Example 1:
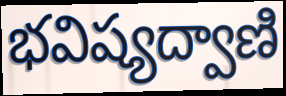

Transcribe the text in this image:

భవిష్యద్వాణి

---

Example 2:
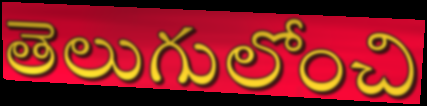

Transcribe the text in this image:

తెలుగులోంచి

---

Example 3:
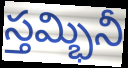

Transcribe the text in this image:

స్తమ్భినీ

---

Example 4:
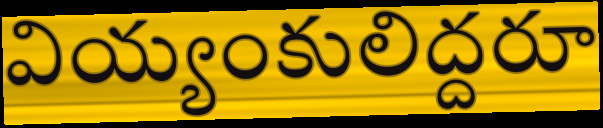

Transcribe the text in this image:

వియ్యంకులిద్దరూ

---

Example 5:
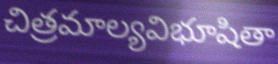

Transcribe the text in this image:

చిత్రమాల్యవిభూషితా